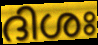
ദിശഃ